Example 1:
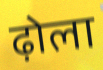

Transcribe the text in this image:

ढ़ोला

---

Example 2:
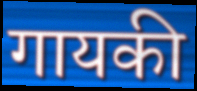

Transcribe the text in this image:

गायकी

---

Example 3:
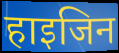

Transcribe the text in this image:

हाइजिन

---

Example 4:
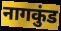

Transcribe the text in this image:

नागकुंड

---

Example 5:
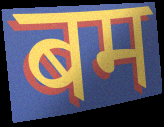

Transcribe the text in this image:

बम